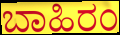
ಬಾಹಿರಂ